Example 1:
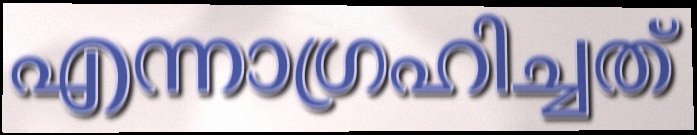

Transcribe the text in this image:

എന്നാഗ്രഹിച്ചത്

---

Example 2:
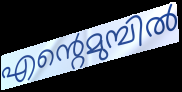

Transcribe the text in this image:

എന്റെമുമ്പിൽ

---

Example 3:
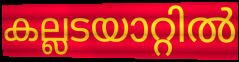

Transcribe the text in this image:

കല്ലടയാറ്റിൽ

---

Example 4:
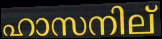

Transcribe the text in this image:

ഹാസനില്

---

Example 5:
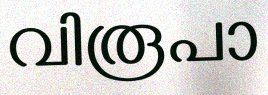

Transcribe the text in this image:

വിരൂപാ